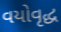
વયોવૃદ્ધ